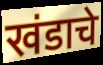
खंडाचे